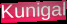
Kunigal